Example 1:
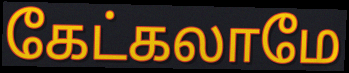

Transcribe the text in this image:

கேட்கலாமே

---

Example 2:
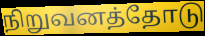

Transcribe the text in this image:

நிறுவனத்தோடு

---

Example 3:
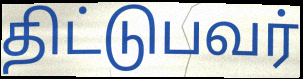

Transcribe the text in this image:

திட்டுபவர்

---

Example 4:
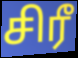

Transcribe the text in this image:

சிரீ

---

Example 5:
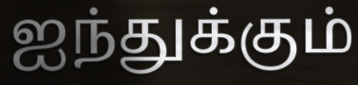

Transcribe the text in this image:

ஐந்துக்கும்